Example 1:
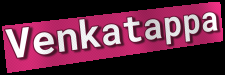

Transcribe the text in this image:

Venkatappa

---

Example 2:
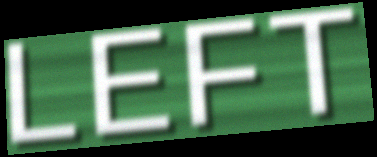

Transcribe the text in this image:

LEFT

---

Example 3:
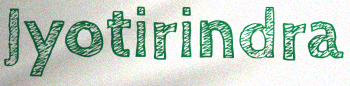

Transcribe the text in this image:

Jyotirindra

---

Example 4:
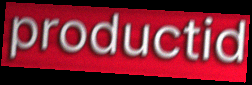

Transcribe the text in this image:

productid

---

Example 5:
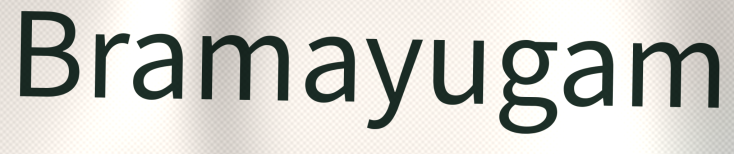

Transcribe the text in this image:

Bramayugam